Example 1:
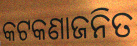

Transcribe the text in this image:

କଟକଣାଜନିତ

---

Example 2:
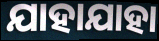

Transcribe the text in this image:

ଯାହାଯାହା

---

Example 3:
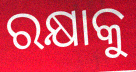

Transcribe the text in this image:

ରକ୍ଷାକୁ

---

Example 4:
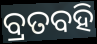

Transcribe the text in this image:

ବ୍ରତବହି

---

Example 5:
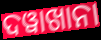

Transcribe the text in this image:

ଦୱାଖାନା